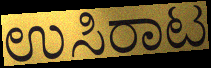
ಉಸಿರಾಟ